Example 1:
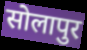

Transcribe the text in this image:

सोलापुर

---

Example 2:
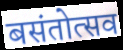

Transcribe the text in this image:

बसंतोत्सव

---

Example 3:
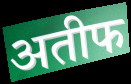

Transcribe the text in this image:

अतीफ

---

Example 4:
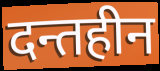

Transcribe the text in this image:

दन्तहीन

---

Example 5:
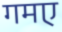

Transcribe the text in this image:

गमए